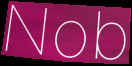
Nob